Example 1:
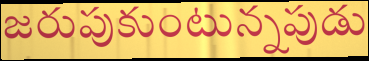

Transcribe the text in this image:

జరుపుకుంటున్నపుడు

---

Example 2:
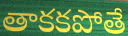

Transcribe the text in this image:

తాకకపోతే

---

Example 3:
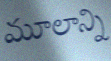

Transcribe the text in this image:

మూలాన్ని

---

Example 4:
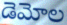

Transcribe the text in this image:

డెమోల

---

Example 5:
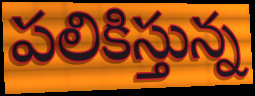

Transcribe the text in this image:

పలికిస్తున్న